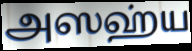
அஸஹ்ய